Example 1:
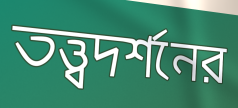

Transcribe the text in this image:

তত্ত্বদর্শনের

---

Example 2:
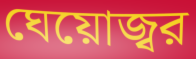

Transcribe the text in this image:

ঘেয়োজ্বর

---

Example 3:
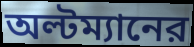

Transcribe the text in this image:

অল্টম্যানের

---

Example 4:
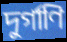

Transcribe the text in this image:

দুর্গাণি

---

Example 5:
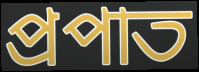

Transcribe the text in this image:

প্রপাত